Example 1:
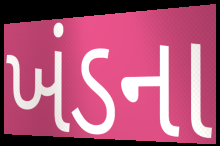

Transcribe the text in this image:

ખંડના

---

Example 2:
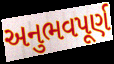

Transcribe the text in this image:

અનુભવપૂર્ણ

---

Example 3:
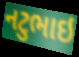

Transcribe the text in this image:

નટુભાઇ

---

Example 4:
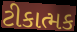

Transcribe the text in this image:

ટીકાત્મક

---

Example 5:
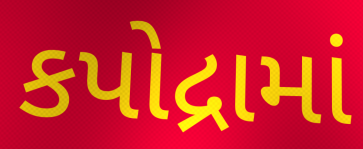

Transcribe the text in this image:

કપોદ્રામાં